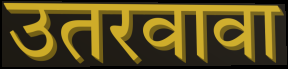
उतरवावा